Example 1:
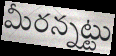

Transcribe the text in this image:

మీరన్నట్టు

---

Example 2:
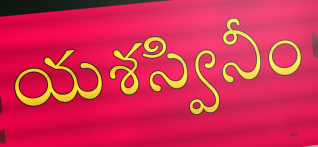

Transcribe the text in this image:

యశస్వినీం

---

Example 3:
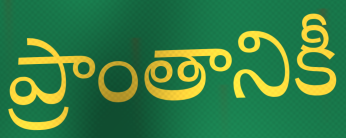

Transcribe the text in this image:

ప్రాంతానికీ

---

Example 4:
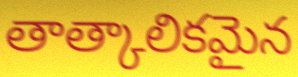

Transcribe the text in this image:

తాత్కాలికమైన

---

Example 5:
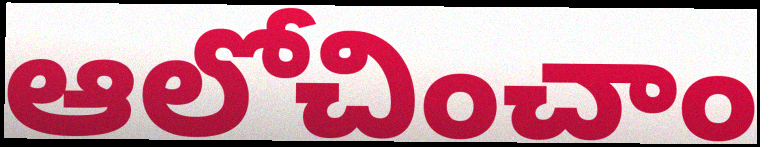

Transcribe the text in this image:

ఆలోచించాం